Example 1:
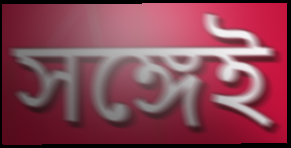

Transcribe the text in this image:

সঙ্গেই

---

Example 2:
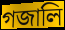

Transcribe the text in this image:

গজালি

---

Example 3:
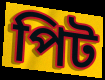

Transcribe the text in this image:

পিট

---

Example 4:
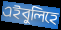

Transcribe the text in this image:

এইবুলিহে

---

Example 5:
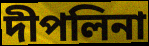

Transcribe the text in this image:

দীপলিনা